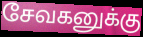
சேவகனுக்கு